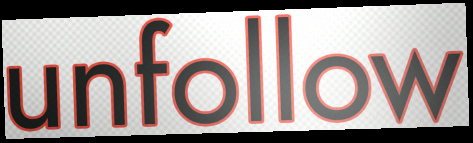
unfollow